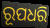
ରୂପଧରି